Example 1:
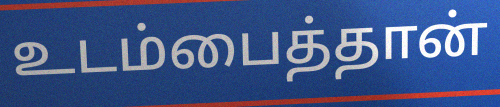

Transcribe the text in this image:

உடம்பைத்தான்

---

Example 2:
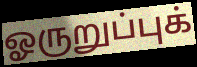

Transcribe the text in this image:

ஓருறுப்புக்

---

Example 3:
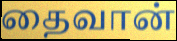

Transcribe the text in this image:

தைவான்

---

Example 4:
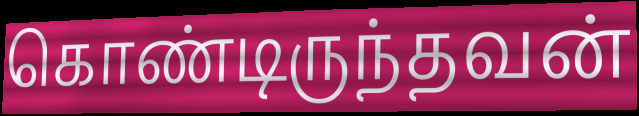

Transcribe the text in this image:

கொண்டிருந்தவன்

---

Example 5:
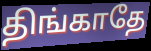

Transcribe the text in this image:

திங்காதே